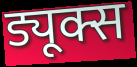
ड्यूक्स